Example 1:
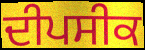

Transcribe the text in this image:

ਦੀਪਸੀਕ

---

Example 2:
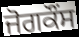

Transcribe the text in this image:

ਜੋਗਕੌਂਸ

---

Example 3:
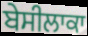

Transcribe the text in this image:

ਬੇਸੀਲਾਕਾ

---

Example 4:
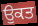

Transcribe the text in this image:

ਉੁਕਤ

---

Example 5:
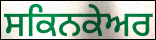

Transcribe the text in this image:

ਸਕਿਨਕੇਅਰ